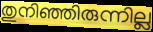
തുനിഞ്ഞിരുന്നില്ല